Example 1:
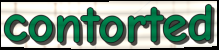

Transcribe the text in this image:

contorted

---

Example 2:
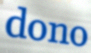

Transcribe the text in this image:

dono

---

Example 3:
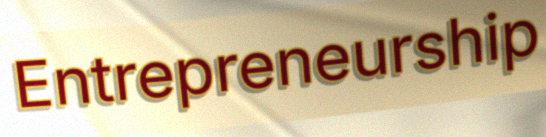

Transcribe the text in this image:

Entrepreneurship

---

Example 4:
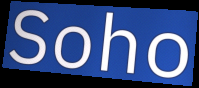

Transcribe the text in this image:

Soho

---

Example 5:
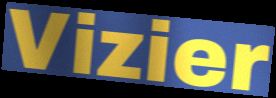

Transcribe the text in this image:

Vizier